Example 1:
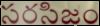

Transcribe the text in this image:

సరసిజం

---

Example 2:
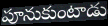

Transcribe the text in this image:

పూనుకుంటాడు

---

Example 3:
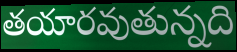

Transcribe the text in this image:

తయారవుతున్నది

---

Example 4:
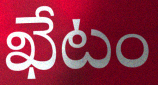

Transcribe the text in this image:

ఖేటం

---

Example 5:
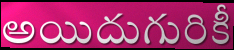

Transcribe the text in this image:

అయిదుగురికీ